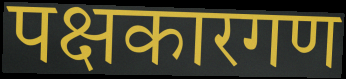
पक्षकारगण